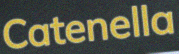
Catenella